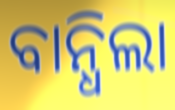
ବାନ୍ଧିଲା